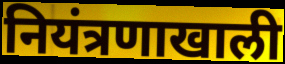
नियंत्रणाखाली